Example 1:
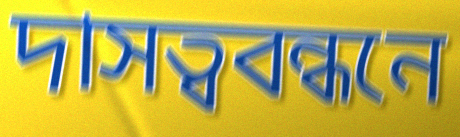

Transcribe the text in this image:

দাসত্ববন্ধনে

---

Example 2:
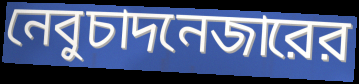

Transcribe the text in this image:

নেবুচাদনেজারের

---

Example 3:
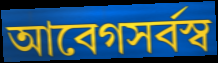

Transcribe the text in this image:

আবেগসর্বস্ব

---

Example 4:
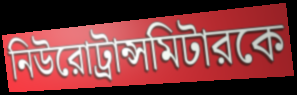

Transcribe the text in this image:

নিউরোট্রান্সমিটারকে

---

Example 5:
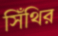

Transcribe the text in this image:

সিঁথির